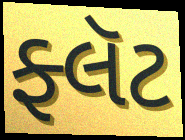
ફ્લૅટ